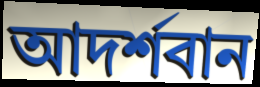
আদর্শবান